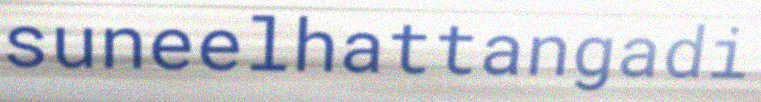
suneelhattangadi